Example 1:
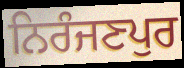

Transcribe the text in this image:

ਨਿਰੰਜਣਪੁਰ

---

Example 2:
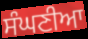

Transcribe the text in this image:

ਸੰਘਣੀਆ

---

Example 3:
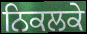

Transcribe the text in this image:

ਨਿਕਲਕੇ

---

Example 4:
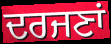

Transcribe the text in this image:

ਦਰਜਣਾਂ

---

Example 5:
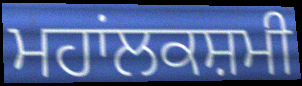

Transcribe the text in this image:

ਮਹਾਂਲਕਸ਼ਮੀ